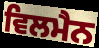
ਵਿਲਮੈਨ